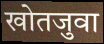
खोतजुवा